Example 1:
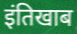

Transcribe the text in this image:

इंतिखाब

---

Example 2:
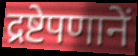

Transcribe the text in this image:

द्रष्टेपणानें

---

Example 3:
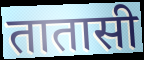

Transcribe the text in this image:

तातासी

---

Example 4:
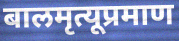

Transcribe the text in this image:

बालमृत्यूप्रमाण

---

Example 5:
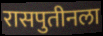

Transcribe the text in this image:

रासपुतीनला